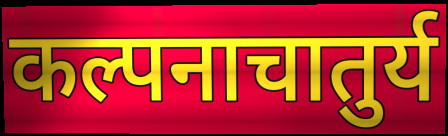
कल्पनाचातुर्य